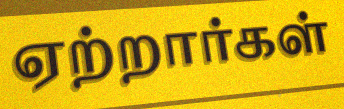
ஏற்றார்கள்